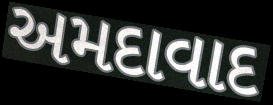
અમદાવાદ